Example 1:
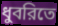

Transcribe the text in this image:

ধুবরিতে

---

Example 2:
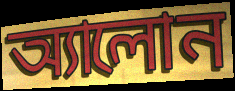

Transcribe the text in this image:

অ্যালোন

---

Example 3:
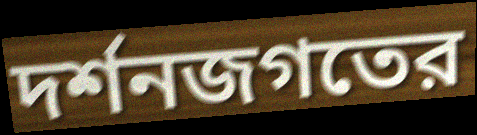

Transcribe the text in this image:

দর্শনজগতের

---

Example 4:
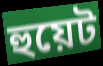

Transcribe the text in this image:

হুয়েট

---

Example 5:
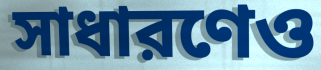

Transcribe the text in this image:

সাধারণেও